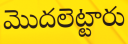
మొదలెట్టారు